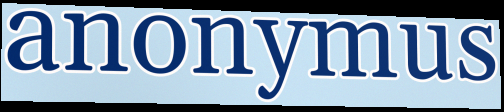
anonymus